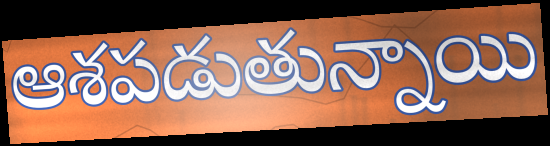
ఆశపడుతున్నాయి